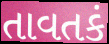
તાવતકં